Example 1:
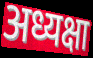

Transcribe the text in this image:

अध्यक्षा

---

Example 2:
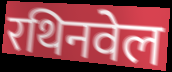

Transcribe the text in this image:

रथिनवेल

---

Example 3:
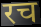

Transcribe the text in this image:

रच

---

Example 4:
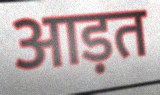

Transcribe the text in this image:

आड़त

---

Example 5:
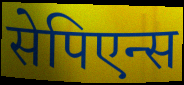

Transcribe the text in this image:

सेपिएन्स